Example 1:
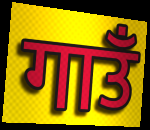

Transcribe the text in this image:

गाउँ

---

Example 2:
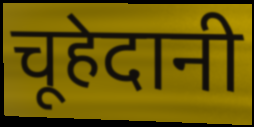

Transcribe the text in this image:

चूहेदानी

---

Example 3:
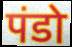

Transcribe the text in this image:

पंडो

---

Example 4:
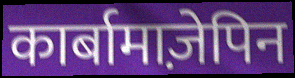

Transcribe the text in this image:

कार्बामाज़ेपिन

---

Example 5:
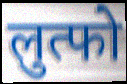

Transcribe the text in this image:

लुत्फो